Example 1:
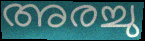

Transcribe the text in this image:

അരച്ചു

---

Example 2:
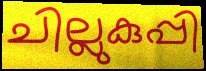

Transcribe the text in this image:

ചില്ലുകുപ്പി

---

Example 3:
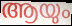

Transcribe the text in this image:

ആയും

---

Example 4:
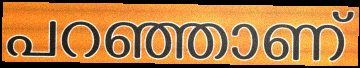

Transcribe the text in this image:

പറഞ്ഞാണ്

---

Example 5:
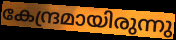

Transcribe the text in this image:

കേന്ദ്രമായിരുന്നു